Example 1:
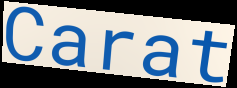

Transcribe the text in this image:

Carat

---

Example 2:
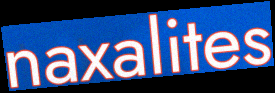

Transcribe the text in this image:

naxalites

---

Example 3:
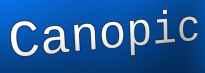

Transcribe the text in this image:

Canopic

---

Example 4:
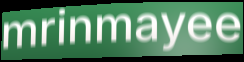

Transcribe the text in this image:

mrinmayee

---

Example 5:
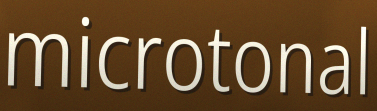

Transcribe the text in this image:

microtonal